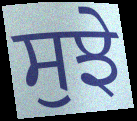
ਸੁਝੇ